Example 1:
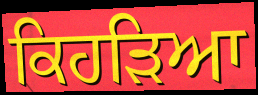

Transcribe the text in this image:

ਕਿਹੜਿਆ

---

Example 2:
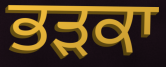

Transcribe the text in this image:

ਭੜਕਾ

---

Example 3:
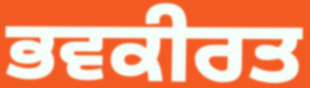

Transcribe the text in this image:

ਭਵਕੀਰਤ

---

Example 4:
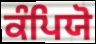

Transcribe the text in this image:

ਕੰਪਿਯੋ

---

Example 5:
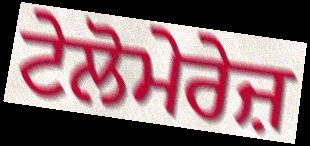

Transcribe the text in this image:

ਟੇਲੋਮੇਰੇਜ਼